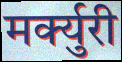
मर्क्युरी